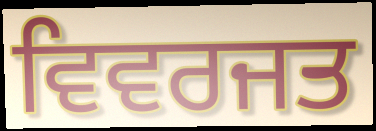
ਵਿਵਰਜਤ